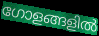
ഗോളങ്ങളിൽ